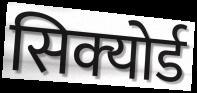
सिक्‍योर्ड